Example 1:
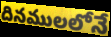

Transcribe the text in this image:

దినములలోనే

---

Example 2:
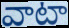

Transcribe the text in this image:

వాటా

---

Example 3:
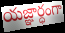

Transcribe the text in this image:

యజ్ఞార్ధంగా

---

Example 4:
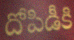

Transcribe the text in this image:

దోపిడీకి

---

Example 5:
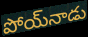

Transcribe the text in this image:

పోయ్‌నాడు